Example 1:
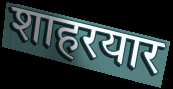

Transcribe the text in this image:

शाहरयार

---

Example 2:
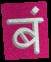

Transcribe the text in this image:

बं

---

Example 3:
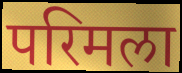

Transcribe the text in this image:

परिमला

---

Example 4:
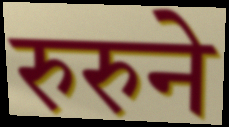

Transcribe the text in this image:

रुरुने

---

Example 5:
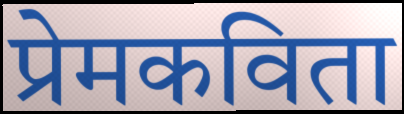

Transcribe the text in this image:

प्रेमकविता